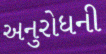
અનુરોધની